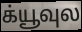
க்யூவுல